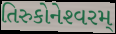
તિરુકોનેશ્‍વરમ્